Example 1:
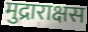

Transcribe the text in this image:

मुद्राराक्षस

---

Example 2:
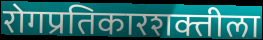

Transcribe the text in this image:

रोगप्रतिकारशक्तीला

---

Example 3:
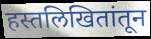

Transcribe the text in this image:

हस्तलिखितांतून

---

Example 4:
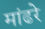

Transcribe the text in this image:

मांढरे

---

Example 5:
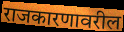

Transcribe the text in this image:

राजकारणावरील